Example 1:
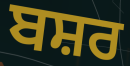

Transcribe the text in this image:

ਬਸ਼ਰ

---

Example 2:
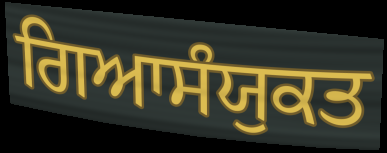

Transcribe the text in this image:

ਗਿਆਸੰਯੁਕਤ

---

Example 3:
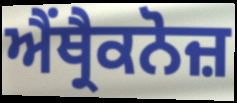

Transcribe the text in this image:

ਐਂਥ੍ਰੈਕਨੋਜ਼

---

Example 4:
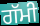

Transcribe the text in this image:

ਗੱਮੀ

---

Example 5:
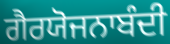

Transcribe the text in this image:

ਗੈਰਯੋਜਨਾਬੰਦੀ